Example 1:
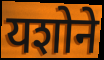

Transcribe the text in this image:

यशोने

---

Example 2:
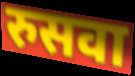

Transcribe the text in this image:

रुसवा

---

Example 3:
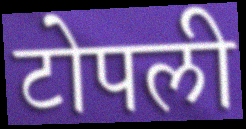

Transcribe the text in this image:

टोपली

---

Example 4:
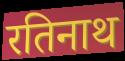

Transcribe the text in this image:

रतिनाथ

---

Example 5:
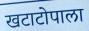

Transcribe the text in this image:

खटाटोपाला